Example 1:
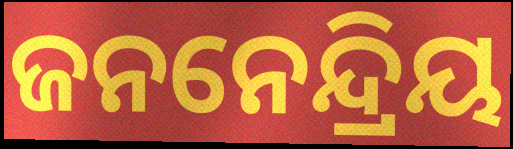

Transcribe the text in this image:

ଜନନେନ୍ଦ୍ରିୟ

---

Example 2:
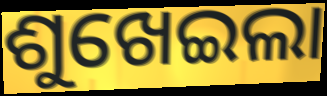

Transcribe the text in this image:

ଶୁଖେଇଲା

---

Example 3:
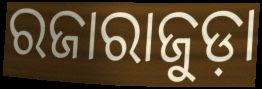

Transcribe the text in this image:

ରଜାରାଜୁଡ଼ା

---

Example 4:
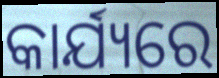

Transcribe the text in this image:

କାର୍ଯ୍ଯରେ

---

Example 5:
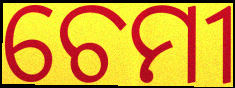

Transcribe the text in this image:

ଚେମୀ